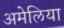
अमेलिया